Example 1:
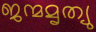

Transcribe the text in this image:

ജന്മമൃത്യു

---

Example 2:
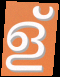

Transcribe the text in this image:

ള്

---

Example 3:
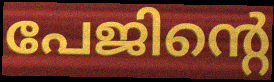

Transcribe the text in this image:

പേജിന്റെ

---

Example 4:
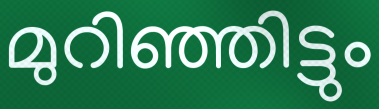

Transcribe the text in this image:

മുറിഞ്ഞിട്ടും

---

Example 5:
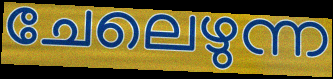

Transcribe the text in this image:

ചേലെഴുന്ന